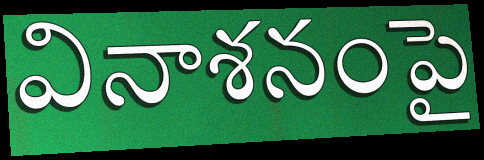
వినాశనంపై